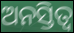
ଅନସ୍ତିତ୍ୱ